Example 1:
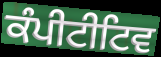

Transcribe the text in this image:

ਕੰਪੀਟੀਟਿਵ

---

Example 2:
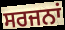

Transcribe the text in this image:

ਸਰਜਨਾਂ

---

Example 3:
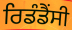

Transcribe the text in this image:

ਰਿਡੰਡੈਂਸੀ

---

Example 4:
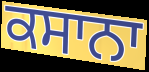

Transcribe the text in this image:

ਕਸਾਨਾ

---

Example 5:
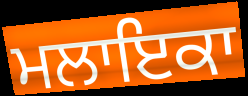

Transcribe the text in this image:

ਮਲਾਇਕਾ